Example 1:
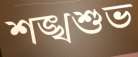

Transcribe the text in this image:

শঙ্খশুভ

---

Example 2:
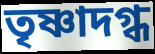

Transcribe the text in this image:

তৃষ্ণাদগ্ধ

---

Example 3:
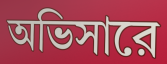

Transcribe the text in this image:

অভিসারে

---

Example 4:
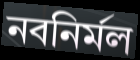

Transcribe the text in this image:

নবনির্মল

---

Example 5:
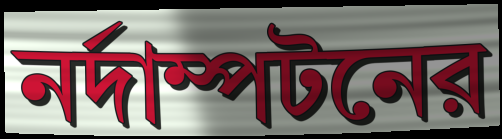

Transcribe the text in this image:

নর্দাম্পটনের